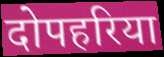
दोपहरिया